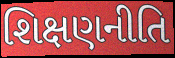
શિક્ષણનીતિ